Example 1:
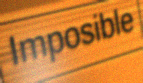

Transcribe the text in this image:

Imposible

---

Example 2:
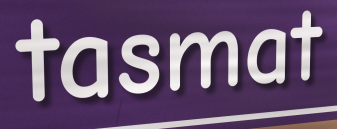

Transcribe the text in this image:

tasmat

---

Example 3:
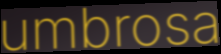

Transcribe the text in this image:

umbrosa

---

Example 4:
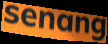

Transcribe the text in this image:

senang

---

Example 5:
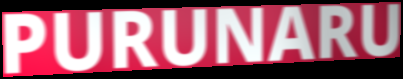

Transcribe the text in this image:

PURUNARU